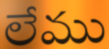
లేము